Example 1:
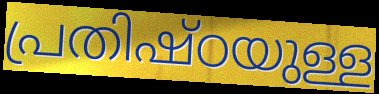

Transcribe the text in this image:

പ്രതിഷ്ഠയുള്ള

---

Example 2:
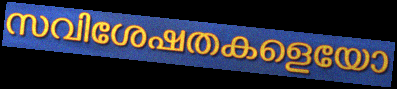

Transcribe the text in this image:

സവിശേഷതകളെയോ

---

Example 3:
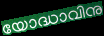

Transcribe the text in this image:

യോദ്ധാവിനു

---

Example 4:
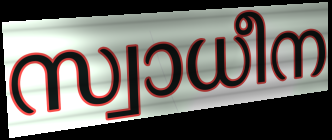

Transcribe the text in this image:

സ്വാധീന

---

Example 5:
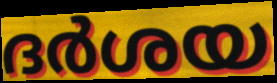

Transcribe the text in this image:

ദർശയ